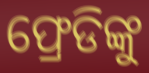
ଫ୍ରେଡିଙ୍କୁ